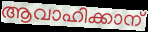
ആവാഹിക്കാന്